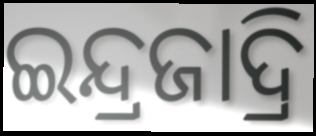
ଇନ୍ଦ୍ରଜାଦ୍ରି